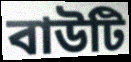
বাউটি